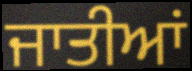
ਜਾਤੀਆਂ